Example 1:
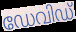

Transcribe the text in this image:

ഡേവിഡ്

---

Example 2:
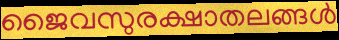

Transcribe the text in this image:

ജൈവസുരക്ഷാതലങ്ങൾ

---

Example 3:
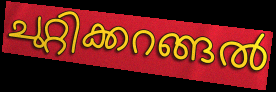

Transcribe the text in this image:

ചുറ്റിക്കറങ്ങൽ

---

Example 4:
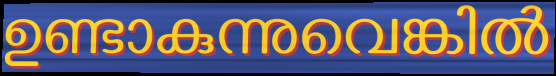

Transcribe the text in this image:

ഉണ്ടാകുന്നുവെങ്കിൽ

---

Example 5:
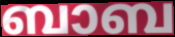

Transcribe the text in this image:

ബാബ